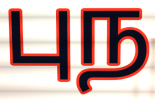
புந